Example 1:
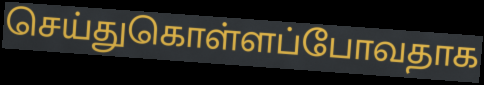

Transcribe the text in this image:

செய்துகொள்ளப்போவதாக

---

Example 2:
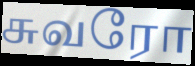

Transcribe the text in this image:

சுவரோ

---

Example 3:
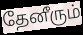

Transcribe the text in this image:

தேனீரும்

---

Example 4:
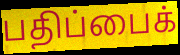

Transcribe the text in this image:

பதிப்பைக்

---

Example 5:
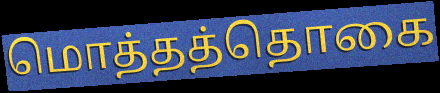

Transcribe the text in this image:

மொத்தத்தொகை